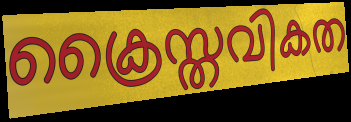
ക്രൈസ്തവികത